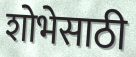
शोभेसाठी